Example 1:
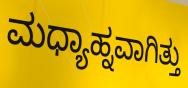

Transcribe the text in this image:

ಮಧ್ಯಾಹ್ನವಾಗಿತ್ತು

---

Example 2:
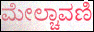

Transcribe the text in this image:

ಮೇಲ್ಚಾವಣಿ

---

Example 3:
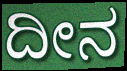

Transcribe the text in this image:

ದೀನ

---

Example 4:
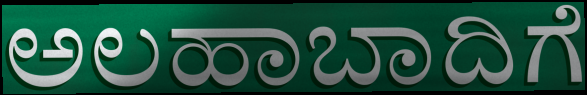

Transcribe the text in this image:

ಅಲಹಾಬಾದಿಗೆ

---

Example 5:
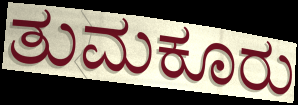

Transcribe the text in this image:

ತುಮಕೂರು